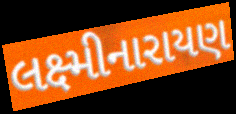
લક્ષ્મીનારાયણ